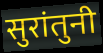
सुरांतुनी